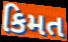
કિમત